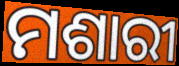
ମଶାରୀ